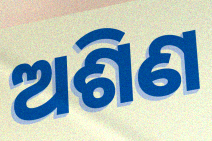
ଅଶିଣ